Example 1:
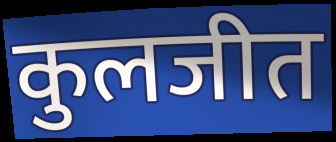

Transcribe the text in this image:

कुलजीत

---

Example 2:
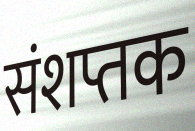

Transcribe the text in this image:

संशप्तक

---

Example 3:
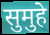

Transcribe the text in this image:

सुमुहे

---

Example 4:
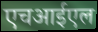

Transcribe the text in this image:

एचआईएल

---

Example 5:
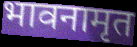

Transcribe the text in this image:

भावनामृत